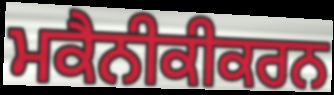
ਮਕੈਨੀਕੀਕਰਨ